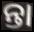
ନ୍ତା